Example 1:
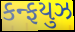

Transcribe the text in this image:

કન્ફયુઝ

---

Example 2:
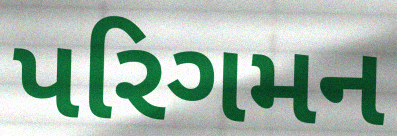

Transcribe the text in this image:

પરિગમન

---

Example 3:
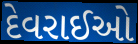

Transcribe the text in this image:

દેવરાઈઓ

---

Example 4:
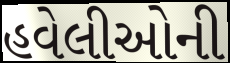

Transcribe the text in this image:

હવેલીઓની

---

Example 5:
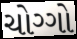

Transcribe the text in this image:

ચોગ્ગો